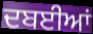
ਦਬਈਆਂ